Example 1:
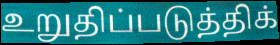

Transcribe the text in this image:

உறுதிப்படுத்திக்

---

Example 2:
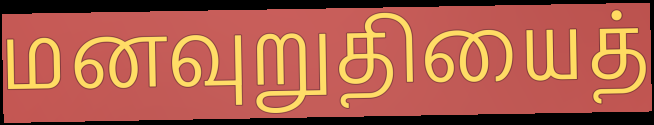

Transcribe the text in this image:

மனவுறுதியைத்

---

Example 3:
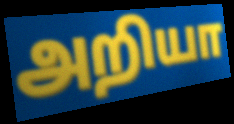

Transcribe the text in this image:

அறியா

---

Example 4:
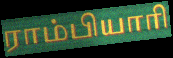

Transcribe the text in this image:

ராம்பியாரி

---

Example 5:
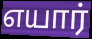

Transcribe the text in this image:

எயார்